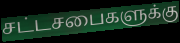
சட்டசபைகளுக்கு